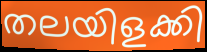
തലയിളക്കി